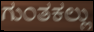
ಗುಂತಕಲ್ಲು